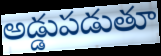
అడ్డుపడుతూ